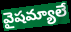
వైషమ్యాలే